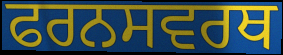
ਫਰਨਸਵਰਥ